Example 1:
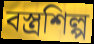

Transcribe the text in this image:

বস্ত্রশিল্প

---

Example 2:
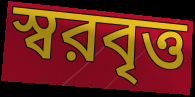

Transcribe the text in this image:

স্বরবৃত্ত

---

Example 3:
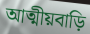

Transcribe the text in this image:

আত্মীয়বাড়ি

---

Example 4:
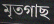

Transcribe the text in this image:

মৃতগাছ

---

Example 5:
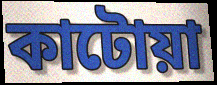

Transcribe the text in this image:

কাটোয়া